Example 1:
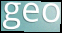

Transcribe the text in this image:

geo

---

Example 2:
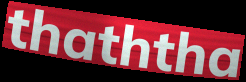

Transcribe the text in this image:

thaththa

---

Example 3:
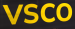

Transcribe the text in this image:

VSCO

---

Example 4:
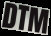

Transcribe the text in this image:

DTM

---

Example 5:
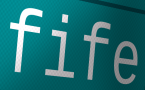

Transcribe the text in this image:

fife